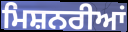
ਮਿਸ਼ਨਰੀਆਂ